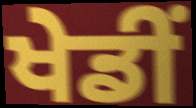
ਖੇਡੀਂ